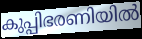
കുപ്പിഭരണിയിൽ